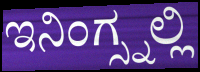
ಇನಿಂಗ್ಸ್ನಲ್ಲಿ